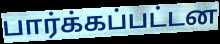
பார்க்கப்பட்டன